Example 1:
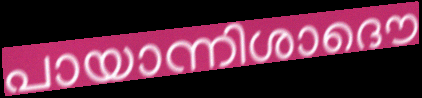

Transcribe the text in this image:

പായാന്നിശാദൌ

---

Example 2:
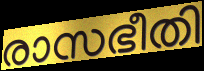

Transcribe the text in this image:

രാസഭീതി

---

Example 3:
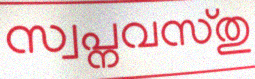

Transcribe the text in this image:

സ്വപ്നവസ്തു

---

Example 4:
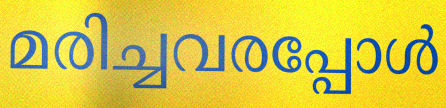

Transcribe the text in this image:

മരിച്ചവരപ്പോൾ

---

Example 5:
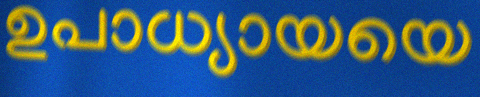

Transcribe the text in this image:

ഉപാധ്യായയെ